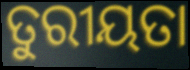
ତୁରୀୟତା